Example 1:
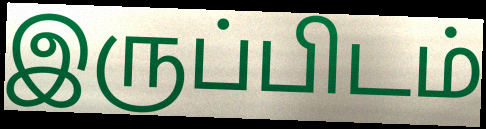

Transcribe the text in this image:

இருப்பிடம்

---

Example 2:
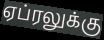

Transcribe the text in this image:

ஏப்ரலுக்கு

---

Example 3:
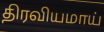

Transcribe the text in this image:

திரவியமாய்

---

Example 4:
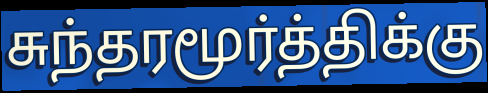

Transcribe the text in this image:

சுந்தரமூர்த்திக்கு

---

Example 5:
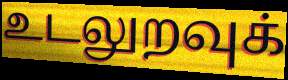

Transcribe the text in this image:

உடலுறவுக்